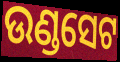
ଉଣ୍ଡସେଟ